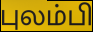
புலம்பி